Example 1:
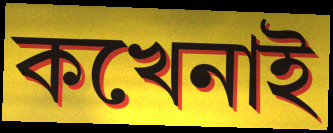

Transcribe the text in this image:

কখেনাই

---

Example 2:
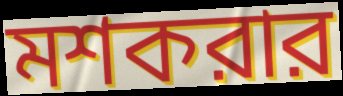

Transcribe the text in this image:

মশকরার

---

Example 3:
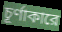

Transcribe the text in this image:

চূর্ণাকারে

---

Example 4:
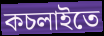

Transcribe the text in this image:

কচলাইতে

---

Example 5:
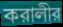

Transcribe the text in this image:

করালীর